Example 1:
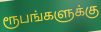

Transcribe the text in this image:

ரூபங்களுக்கு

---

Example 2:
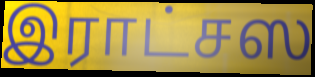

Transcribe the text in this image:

இராட்சஸ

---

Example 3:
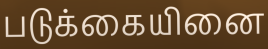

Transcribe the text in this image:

படுக்கையினை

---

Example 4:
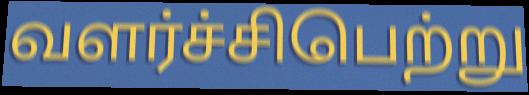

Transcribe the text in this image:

வளர்ச்சிபெற்று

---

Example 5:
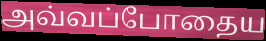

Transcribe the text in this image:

அவ்வப்போதைய